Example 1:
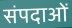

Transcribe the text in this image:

संपदाओं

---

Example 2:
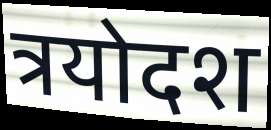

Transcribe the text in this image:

त्रयोदश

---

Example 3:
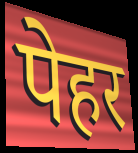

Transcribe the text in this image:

पेहर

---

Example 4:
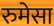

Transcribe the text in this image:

रुमेसा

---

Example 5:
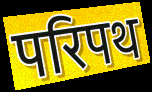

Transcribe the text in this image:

परिपथ